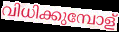
വിധിക്കുമ്പോള്